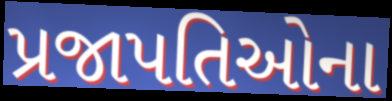
પ્રજાપતિઓના